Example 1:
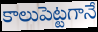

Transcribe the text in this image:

కాలుపెట్టగానే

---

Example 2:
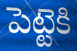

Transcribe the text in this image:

పెట్టెకి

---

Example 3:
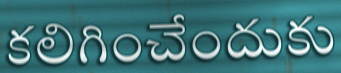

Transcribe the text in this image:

కలిగించేందుకు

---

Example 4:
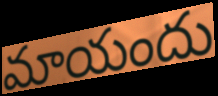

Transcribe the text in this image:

మాయందు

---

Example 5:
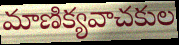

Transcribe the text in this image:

మాణిక్యవాచకుల